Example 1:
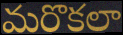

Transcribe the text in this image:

మరొకలా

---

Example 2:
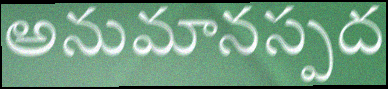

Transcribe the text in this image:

అనుమానస్పద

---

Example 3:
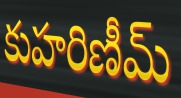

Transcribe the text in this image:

కుహరిణీమ్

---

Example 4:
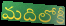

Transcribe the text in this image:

మదిలోకీ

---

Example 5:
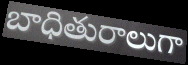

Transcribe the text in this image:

బాధితురాలుగా